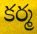
కర్మ